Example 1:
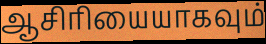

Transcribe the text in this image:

ஆசிரியையாகவும்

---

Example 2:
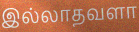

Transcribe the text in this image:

இல்லாதவளா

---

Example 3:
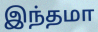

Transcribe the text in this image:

இந்தமா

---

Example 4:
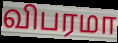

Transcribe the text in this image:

விபரமா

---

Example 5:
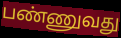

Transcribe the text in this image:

பண்ணுவது